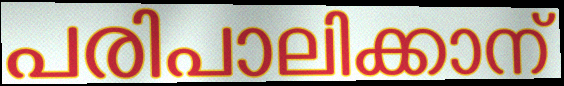
പരിപാലിക്കാന്